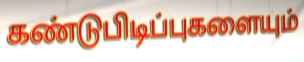
கண்டுபிடிப்புகளையும்